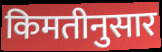
किमतीनुसार